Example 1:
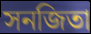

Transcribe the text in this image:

সনজিতা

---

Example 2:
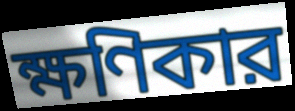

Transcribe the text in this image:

ক্ষণিকার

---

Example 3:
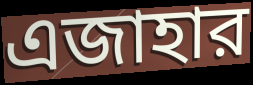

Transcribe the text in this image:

এজাহার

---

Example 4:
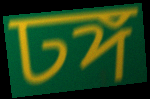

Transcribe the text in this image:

ঢঙ্গ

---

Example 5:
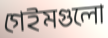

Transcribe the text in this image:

গেইমগুলো